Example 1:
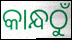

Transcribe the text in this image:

କାନ୍ଧଠୁଁ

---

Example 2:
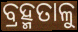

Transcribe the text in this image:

ବ୍ରହ୍ମତାଳୁ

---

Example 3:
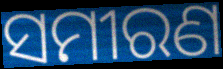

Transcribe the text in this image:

ସମୀରଣ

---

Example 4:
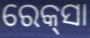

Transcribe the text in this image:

ରେକ୍‍ସା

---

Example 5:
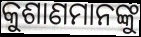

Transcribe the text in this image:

କୁଶାଣମାନଙ୍କୁ